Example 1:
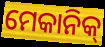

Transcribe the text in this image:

ମେକାନିକ୍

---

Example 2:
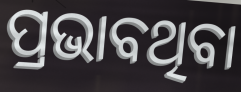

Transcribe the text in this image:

ପ୍ରଭାବଥିବା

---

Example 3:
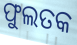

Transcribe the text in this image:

ଫୁଲତକ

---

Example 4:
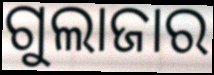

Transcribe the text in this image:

ଗୁଲାଜାର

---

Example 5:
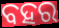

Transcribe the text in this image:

ବହର